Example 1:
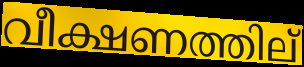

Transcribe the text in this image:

വീക്ഷണത്തില്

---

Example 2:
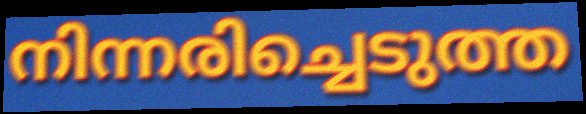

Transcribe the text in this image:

നിന്നരിച്ചെടുത്ത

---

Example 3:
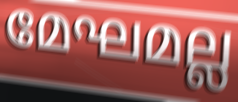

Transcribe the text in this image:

മേഘമല്ല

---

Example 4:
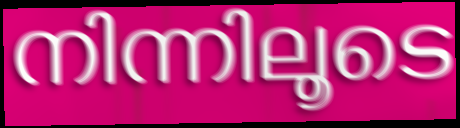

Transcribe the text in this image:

നിന്നിലൂടെ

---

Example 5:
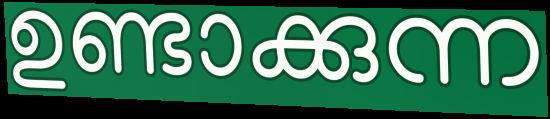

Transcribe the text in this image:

ഉണ്ടാക്കുന്ന